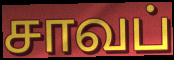
சாவப்